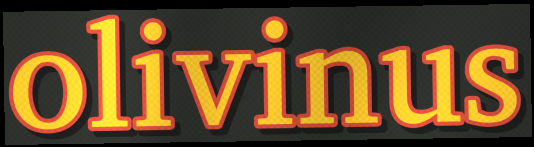
olivinus